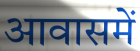
आवासमें